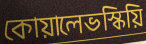
কোয়ালেভস্কিয়ি